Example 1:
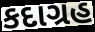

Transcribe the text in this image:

કદાગ્રહ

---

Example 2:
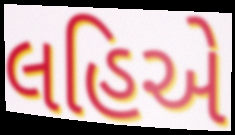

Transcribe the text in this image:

લહિએ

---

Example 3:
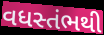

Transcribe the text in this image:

વધસ્તંભથી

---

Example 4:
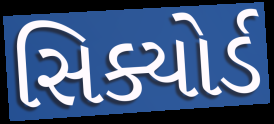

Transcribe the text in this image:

સિક્યોર્ડ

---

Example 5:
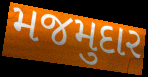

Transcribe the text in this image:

મજમુદાર